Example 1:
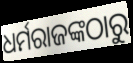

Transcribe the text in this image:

ଧର୍ମରାଜଙ୍କଠାରୁ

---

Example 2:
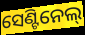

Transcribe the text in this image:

ସେଣ୍ଟିନେଲ୍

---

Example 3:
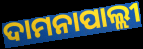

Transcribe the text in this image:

ଦାମନାପାଲ୍ଲୀ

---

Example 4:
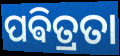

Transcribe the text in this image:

ପଵିତ୍ରତା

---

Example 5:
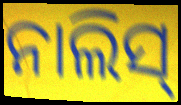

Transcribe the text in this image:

ନାଲିସ୍